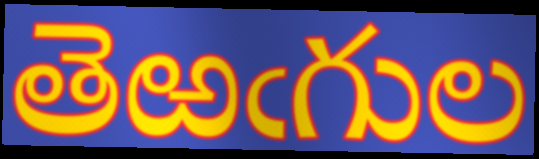
తెఱఁగుల